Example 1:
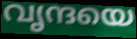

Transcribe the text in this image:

വൃന്ദയെ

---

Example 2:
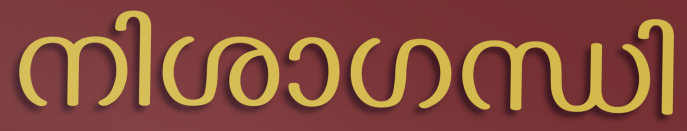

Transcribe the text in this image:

നിശാഗന്ധി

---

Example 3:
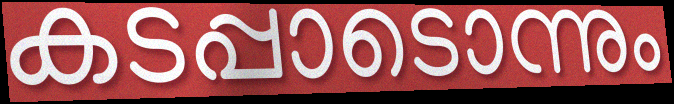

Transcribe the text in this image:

കടപ്പാടൊന്നും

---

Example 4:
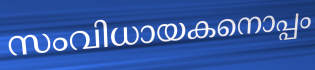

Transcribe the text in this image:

സംവിധായകനൊപ്പം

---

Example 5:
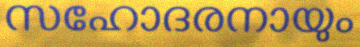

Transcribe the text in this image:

സഹോദരനായും